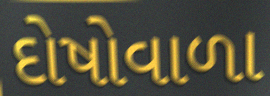
દોષોવાળા